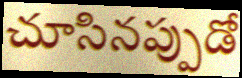
చూసినప్పుడో